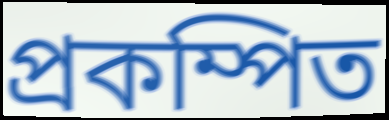
প্রকম্পিত